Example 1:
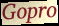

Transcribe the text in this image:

Gopro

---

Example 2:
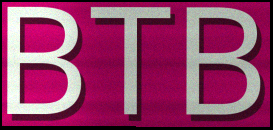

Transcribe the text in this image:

BTB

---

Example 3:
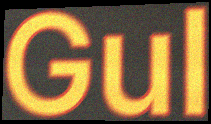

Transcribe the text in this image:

Gul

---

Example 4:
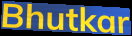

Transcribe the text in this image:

Bhutkar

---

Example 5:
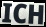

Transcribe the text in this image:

ICH